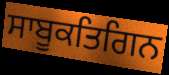
ਸਾਬੂਕਤਿਗਿਨ